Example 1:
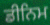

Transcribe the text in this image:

ਡੀਨਿਮ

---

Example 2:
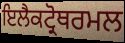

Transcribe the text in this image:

ਇਲੈਕਟ੍ਰੋਥਰਮਲ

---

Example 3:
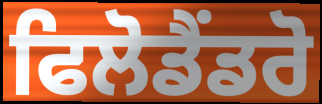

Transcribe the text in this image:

ਫਿਲੋਡੈਂਡਰੋ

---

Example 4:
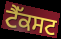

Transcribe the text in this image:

ਟੈੱਕਸਟ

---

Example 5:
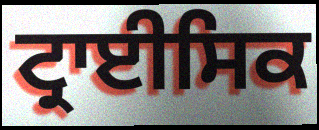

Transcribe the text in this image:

ਟ੍ਰਾਈਸਿਕ